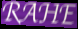
RAHE